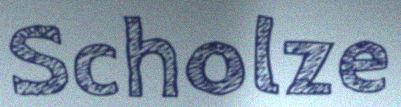
Scholze